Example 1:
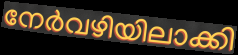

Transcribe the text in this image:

നേർവഴിയിലാക്കി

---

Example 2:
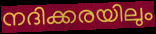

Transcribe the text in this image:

നദിക്കരയിലും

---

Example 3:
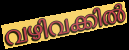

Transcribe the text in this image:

വഴിവക്കിൽ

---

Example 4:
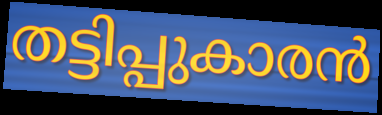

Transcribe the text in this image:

തട്ടിപ്പുകാരൻ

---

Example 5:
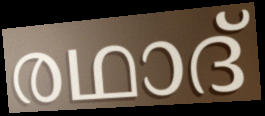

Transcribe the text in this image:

രഥാദ്